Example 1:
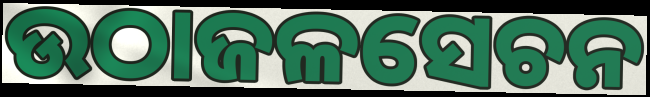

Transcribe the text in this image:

ଉଠାଜଳସେଚନ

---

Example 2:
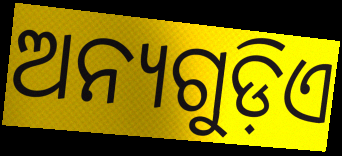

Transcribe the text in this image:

ଅନ୍ୟଗୁଡ଼ିଏ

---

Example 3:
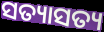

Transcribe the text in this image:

ସତ୍ୟାସତ୍ୟ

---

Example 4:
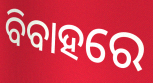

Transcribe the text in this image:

ବିବାହରେ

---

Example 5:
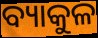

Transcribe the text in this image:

ବ୍ୟାକୁଳ